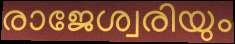
രാജേശ്വരിയും